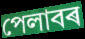
পেলাবৰ